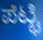
ಪೆಟ್ಟಿ